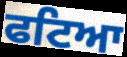
ਫਟਿਆ